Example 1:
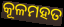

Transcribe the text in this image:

କୂଳମହତ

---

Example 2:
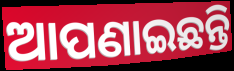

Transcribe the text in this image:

ଆପଣାଇଛନ୍ତି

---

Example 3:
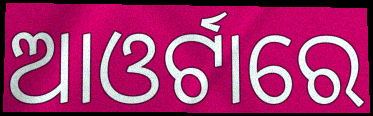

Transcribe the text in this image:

ଆଓର୍ଟାରେ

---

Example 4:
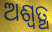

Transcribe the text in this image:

ଅଶ୍ବତ୍ଥ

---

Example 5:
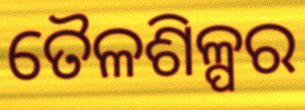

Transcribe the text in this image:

ତୈଳଶିଳ୍ପର